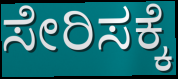
ಸೇರಿಸಕ್ಕೆ